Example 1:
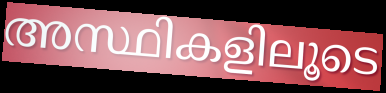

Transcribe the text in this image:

അസ്ഥികളിലൂടെ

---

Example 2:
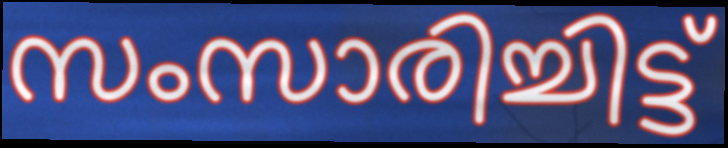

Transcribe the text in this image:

സംസാരിച്ചിട്ട്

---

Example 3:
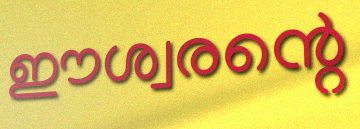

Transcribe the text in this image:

ഈശ്വരന്റെ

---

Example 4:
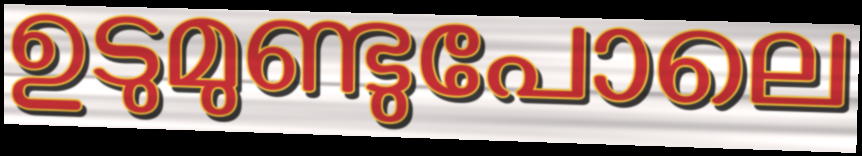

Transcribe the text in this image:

ഉടുമുണ്ടുപോലെ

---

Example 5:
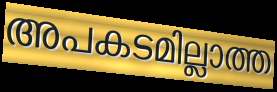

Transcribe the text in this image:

അപകടമില്ലാത്ത